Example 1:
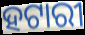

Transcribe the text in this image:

ହଟାରୀ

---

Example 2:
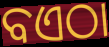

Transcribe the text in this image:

ବଏଠା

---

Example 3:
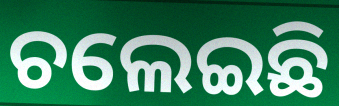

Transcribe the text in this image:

ଚଲେଇଛି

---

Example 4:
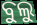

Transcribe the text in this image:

ବୁଲୁ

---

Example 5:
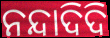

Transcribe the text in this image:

ନନ୍ଦାଦିଦି